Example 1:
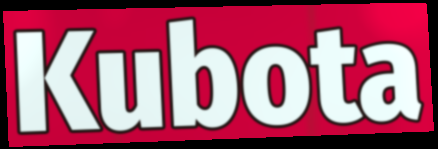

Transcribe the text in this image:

Kubota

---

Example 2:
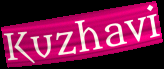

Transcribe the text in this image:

Kuzhavi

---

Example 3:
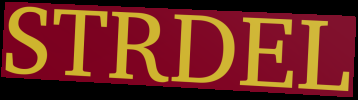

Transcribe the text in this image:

STRDEL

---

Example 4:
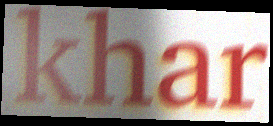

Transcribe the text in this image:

khar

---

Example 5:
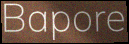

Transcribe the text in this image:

Bapore